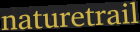
naturetrail